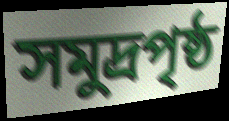
সমুদ্রপৃষ্ঠ